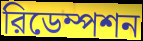
রিডেম্পশন